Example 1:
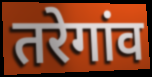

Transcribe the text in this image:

तरेगांव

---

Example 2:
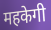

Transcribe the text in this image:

महकेगी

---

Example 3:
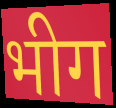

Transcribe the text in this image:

भीग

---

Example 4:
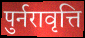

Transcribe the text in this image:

पुर्नरावृत्ति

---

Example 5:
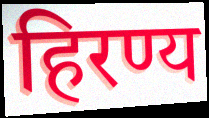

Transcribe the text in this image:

हिरण्य